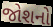
જોશનો